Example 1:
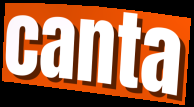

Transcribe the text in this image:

canta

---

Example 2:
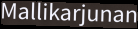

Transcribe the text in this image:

Mallikarjunan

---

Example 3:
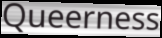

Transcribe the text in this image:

Queerness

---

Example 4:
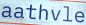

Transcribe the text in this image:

aathvle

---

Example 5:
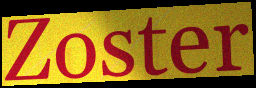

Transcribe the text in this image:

Zoster